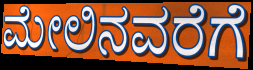
ಮೇಲಿನವರೆಗೆ